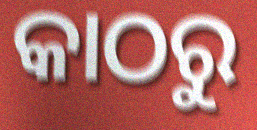
କାଠରୁ